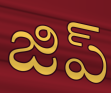
జిప్